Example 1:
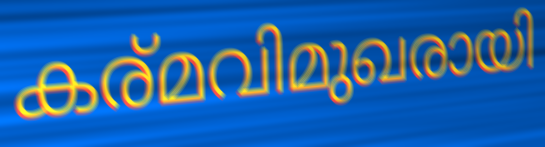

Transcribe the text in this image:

കര്മവിമുഖരായി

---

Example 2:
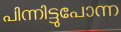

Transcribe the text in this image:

പിന്നിട്ടുപോന്ന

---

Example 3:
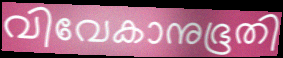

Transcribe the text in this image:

വിവേകാനുഭൂതി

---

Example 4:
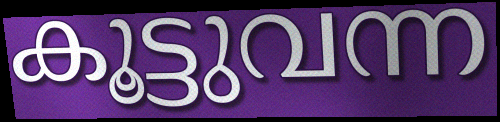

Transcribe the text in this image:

കൂട്ടുവന്ന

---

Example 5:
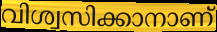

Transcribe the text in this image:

വിശ്വസിക്കാനാണ്